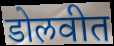
डोलवीत